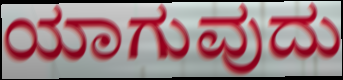
ಯಾಗುವುದು